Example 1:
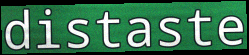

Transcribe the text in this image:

distaste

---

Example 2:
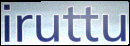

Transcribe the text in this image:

iruttu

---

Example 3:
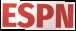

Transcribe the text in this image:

ESPN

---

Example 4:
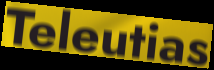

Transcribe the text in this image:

Teleutias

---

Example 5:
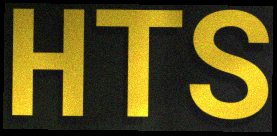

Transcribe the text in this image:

HTS